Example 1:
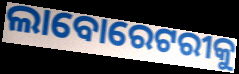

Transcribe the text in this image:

ଲାବୋରେଟରୀକୁ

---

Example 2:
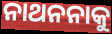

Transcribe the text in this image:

ନାଥନନାକୁ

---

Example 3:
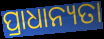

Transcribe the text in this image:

ପ୍ରାଧାନ୍ୟତା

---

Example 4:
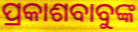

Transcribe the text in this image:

ପ୍ରକାଶବାବୁଙ୍କ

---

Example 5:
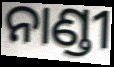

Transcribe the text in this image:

ନାଣ୍ଡୀ